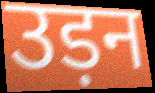
उड़न